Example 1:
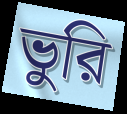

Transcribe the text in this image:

ভুরি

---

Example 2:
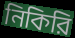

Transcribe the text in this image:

নিকিরি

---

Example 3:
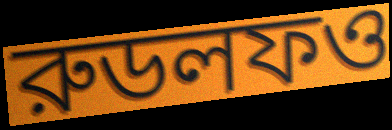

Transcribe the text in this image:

রুডলফও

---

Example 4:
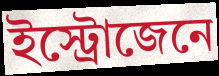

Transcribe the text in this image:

ইস্ট্রোজেনে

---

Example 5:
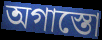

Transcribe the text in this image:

অগাস্তো